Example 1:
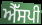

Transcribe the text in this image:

ਐੱਸਪੀ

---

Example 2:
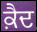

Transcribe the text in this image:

ਕ਼ੈਦ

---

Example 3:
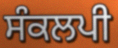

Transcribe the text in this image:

ਸੰਕਲਪੀ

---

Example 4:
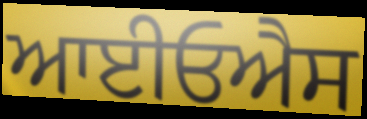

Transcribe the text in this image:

ਆਈਓਐਸ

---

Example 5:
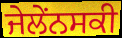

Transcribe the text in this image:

ਜੇਲੇਂਨਸਕੀ